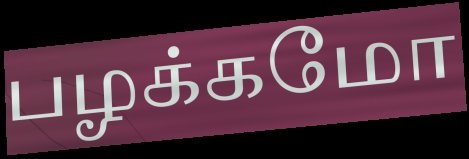
பழக்கமோ